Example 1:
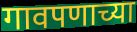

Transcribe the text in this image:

गावपणाच्या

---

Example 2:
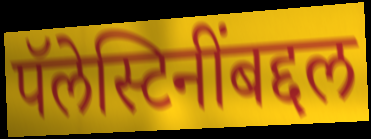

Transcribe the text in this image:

पॅलेस्टिनींबद्दल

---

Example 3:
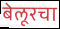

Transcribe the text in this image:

बेलूरचा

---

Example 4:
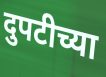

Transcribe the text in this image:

दुपटीच्या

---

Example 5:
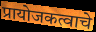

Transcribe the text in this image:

प्रायोजकत्वाचे